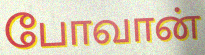
போவான்